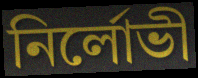
নির্লোভী